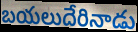
బయలుదేరినాడు